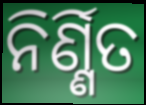
ନିର୍ଣ୍ଣିତ